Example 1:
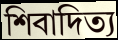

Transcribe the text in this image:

শিবাদিত্য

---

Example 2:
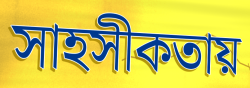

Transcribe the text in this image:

সাহসীকতায়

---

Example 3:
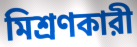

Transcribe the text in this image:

মিশ্রণকারী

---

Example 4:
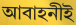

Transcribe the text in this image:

আবাহনীই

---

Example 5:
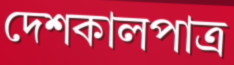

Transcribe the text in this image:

দেশকালপাত্র